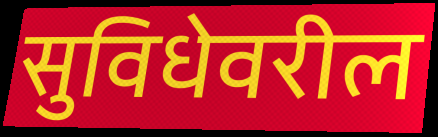
सुविधेवरील